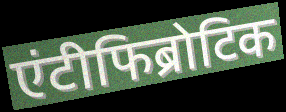
एंटीफिब्रोटिक